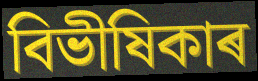
বিভীষিকাৰ